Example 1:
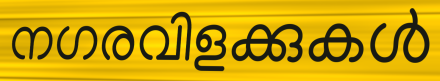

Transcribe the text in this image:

നഗരവിളക്കുകൾ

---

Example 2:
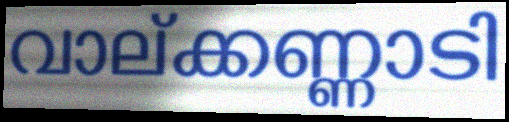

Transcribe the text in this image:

വാല്ക്കണ്ണാടി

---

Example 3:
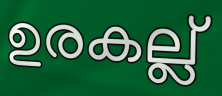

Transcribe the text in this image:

ഉരകല്ല്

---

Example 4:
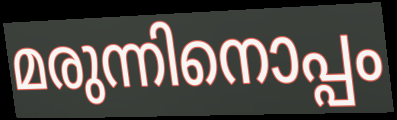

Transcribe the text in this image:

മരുന്നിനൊപ്പം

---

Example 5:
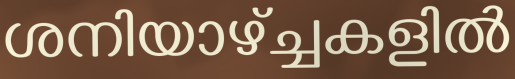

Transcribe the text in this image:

ശനിയാഴ്ച്ചകളിൽ